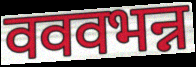
वववभन्न